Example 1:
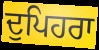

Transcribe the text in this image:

ਦੁਪਿਹਰਾ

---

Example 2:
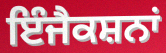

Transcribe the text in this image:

ਇੰਜੈਕਸ਼ਨਾਂ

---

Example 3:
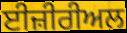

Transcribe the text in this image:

ਈਜ਼ੀਰੀਅਲ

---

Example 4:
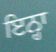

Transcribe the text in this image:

ਇਨ੍ਹਾ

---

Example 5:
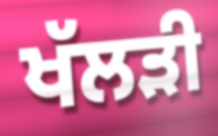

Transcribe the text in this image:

ਖੱਲੜੀ